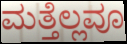
ಮತ್ತೆಲ್ಲವೂ